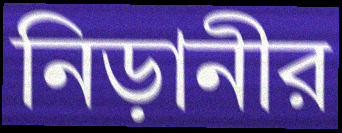
নিড়ানীর